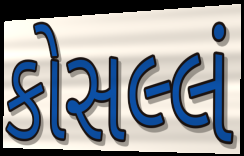
કોસલ્લં